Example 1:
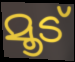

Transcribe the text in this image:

മൂട്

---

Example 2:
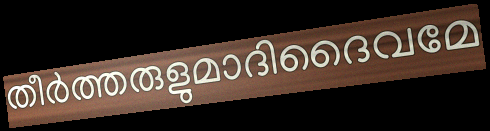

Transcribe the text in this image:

തീർത്തരുളുമാദിദൈവമേ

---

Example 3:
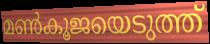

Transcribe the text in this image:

മൺകൂജയെടുത്ത്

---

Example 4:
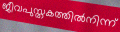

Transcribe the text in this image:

ജീവപുസ്തകത്തിൽനിന്ന്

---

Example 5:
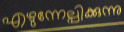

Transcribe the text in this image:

എഴുന്നേല്പിക്കുന്നു